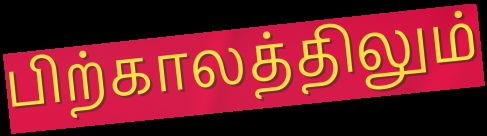
பிற்காலத்திலும்